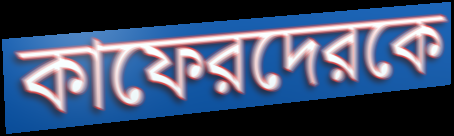
কাফেরদেরকে